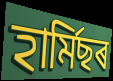
হাৰ্মিছৰ